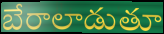
బేరాలాడుతూ